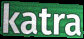
katra